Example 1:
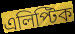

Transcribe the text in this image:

এলিপ্টিক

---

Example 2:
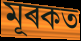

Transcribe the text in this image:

মূৰকত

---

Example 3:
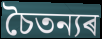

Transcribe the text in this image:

চৈতন্যৰ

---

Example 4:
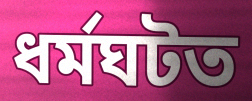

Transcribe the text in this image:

ধৰ্মঘটত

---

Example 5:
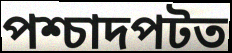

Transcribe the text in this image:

পশ্চাদপটত